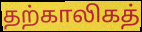
தற்காலிகத்